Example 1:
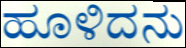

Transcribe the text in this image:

ಹೂಳಿದನು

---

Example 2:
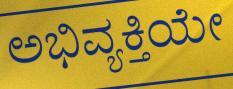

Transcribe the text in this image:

ಅಭಿವ್ಯಕ್ತಿಯೇ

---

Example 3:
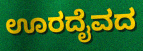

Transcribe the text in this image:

ಊರದೈವದ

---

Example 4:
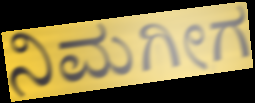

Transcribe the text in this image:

ನಿಮಗೀಗ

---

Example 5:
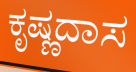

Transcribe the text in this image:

ಕೃಷ್ಣದಾಸ